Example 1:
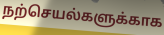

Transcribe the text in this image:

நற்செயல்களுக்காக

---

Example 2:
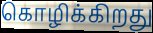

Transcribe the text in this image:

கொழிக்கிறது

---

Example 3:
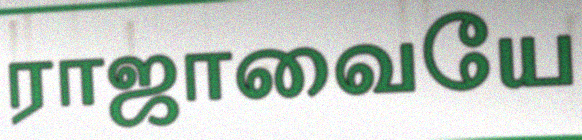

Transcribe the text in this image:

ராஜாவையே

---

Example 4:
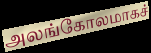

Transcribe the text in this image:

அலங்கோலமாகச்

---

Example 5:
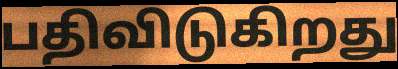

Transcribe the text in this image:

பதிவிடுகிறது